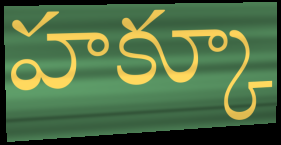
హక్కూ